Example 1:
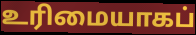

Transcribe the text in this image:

உரிமையாகப்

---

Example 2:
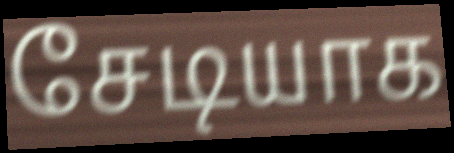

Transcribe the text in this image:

சேடியாக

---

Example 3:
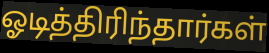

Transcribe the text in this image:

ஓடித்திரிந்தார்கள்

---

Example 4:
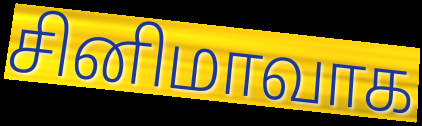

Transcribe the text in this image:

சினிமாவாக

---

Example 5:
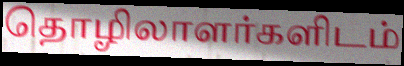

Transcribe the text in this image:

தொழிலாளர்களிடம்